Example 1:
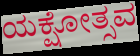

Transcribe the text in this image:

ಯಕ್ಷೋತ್ಸವ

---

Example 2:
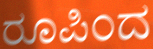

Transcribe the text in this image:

ರೂಪಿಂದ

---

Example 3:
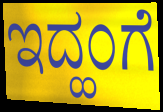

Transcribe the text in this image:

ಇದ್ಹಂಗೆ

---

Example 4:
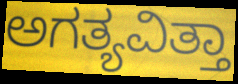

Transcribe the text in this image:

ಅಗತ್ಯವಿತ್ತಾ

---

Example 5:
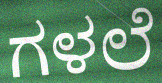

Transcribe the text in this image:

ಗಳಲೆ